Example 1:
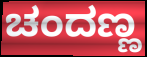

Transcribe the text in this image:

ಚಂದಣ್ಣ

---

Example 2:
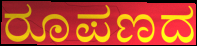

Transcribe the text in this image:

ರೂಪಣದ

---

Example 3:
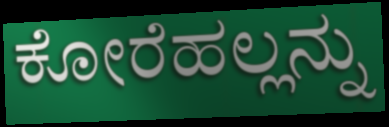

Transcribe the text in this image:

ಕೋರೆಹಲ್ಲನ್ನು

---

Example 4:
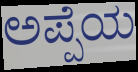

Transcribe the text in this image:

ಅಪ್ಪೆಯ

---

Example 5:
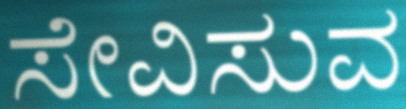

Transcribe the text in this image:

ಸೇವಿಸುವ